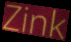
Zink